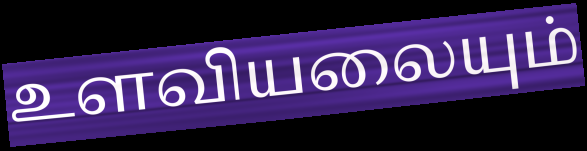
உளவியலையும்